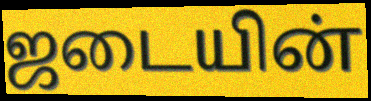
ஜடையின்